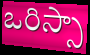
ఒరిస్సా